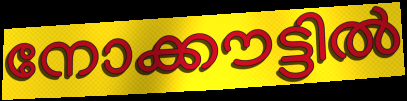
നോക്കൗട്ടിൽ